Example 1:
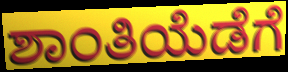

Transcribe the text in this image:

ಶಾಂತಿಯೆಡೆಗೆ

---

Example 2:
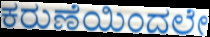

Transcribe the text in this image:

ಕರುಣೆಯಿಂದಲೇ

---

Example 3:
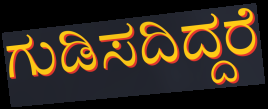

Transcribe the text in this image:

ಗುಡಿಸದಿದ್ದರೆ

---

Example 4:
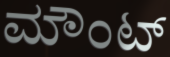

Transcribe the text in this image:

ಮೌಂಟ್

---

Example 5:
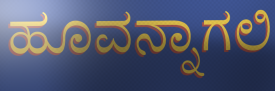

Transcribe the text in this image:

ಹೂವನ್ನಾಗಲಿ